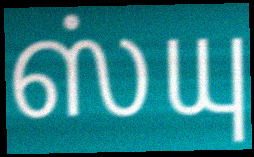
ஸ்யு